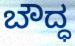
ಬೌದ್ಧ